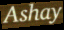
Ashay